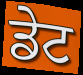
ਡੇਟ